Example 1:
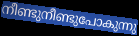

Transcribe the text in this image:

നീണ്ടുനീണ്ടുപോകുന്നു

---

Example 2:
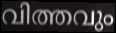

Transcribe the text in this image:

വിത്തവും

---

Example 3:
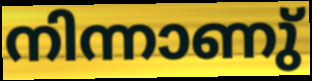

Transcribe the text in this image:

നിന്നാണു്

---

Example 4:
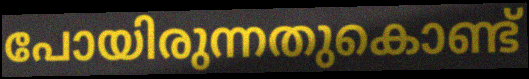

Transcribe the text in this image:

പോയിരുന്നതുകൊണ്ട്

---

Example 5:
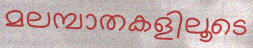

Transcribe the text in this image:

മലമ്പാതകളിലൂടെ